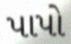
પાપો